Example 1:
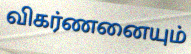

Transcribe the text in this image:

விகர்ணனையும்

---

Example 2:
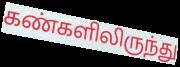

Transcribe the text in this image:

கண்களிலிருந்து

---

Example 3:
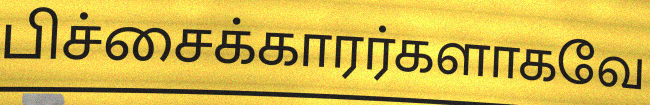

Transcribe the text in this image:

பிச்சைக்காரர்களாகவே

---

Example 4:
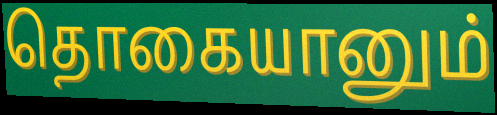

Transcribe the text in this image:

தொகையானும்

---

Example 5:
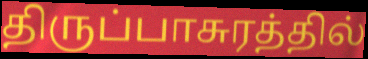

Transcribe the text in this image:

திருப்பாசுரத்தில்